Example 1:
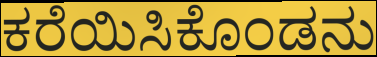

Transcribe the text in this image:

ಕರೆಯಿಸಿಕೊಂಡನು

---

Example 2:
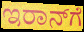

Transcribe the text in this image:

ಇರಾನ್‌ಗೆ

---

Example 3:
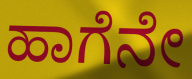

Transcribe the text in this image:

ಹಾಗೆನೇ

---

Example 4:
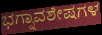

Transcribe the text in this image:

ಭಗ್ನಾವಶೇಷಗಳ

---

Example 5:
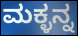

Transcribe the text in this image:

ಮಕ್ಳನ್ನ